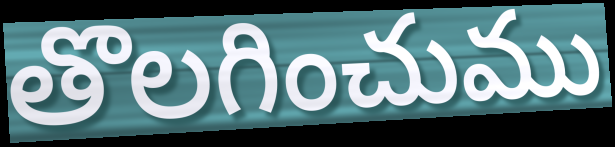
తొలగించుము